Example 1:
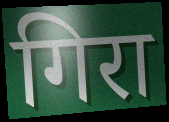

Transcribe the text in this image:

गिरा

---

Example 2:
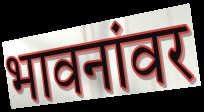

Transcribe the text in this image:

भावनांवर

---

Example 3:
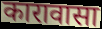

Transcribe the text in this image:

कारावासा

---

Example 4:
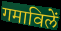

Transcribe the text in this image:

गमाविलें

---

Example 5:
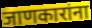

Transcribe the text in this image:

जाणकारांना